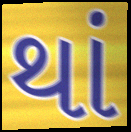
થાં